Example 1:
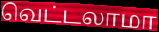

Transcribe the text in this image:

வெட்டலாமா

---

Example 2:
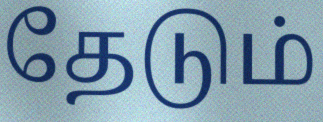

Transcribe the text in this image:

தேடும்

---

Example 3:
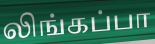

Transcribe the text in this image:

லிங்கப்பா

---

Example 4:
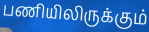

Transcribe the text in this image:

பணியிலிருக்கும்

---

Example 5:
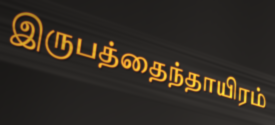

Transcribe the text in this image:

இருபத்தைந்தாயிரம்